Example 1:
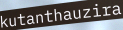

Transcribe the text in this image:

kutanthauzira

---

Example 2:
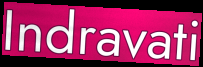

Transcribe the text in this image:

Indravati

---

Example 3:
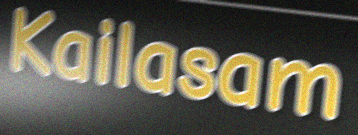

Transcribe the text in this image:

Kailasam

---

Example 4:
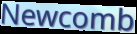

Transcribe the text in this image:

Newcomb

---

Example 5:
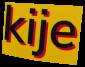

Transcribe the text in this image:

kije